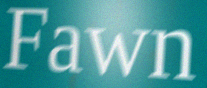
Fawn